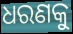
ଧରଣକୁ